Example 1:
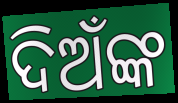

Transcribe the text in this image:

ଦିଅଁଙ୍କ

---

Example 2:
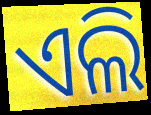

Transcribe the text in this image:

ଏଲି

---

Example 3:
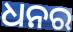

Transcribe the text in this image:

ଧନର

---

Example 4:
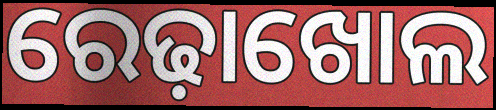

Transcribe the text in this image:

ରେଢ଼ାଖୋଲ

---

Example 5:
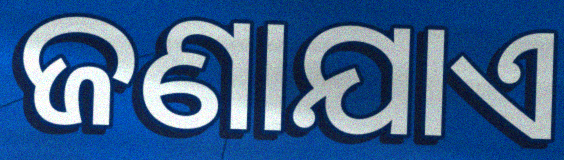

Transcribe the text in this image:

ଜଣାଯାଏ